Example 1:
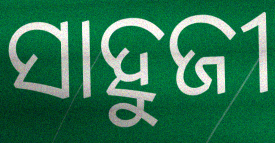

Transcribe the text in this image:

ସାହୁଜୀ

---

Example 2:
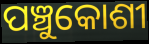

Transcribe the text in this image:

ପଞ୍ଚୁକୋଶୀ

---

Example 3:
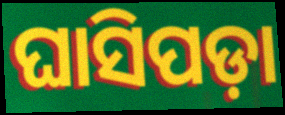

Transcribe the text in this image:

ଘାସିପଡ଼ା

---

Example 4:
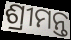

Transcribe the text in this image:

ଶ୍ରୀମନ୍ତ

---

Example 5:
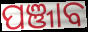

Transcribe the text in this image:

ପଞ୍ଜାବ